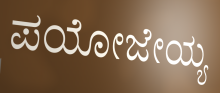
ಪಯೋಜೇಯ್ಯ